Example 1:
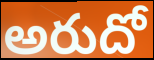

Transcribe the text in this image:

అరుదో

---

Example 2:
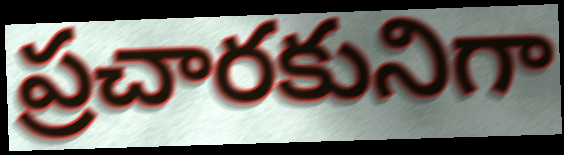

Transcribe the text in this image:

ప్రచారకునిగా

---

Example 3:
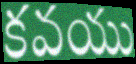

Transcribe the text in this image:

కవయు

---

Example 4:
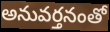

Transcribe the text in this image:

అనువర్తనంతో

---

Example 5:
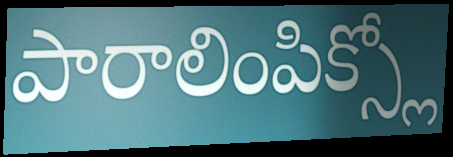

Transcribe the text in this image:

పారాలింపిక్స్లో